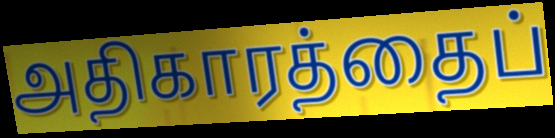
அதிகாரத்தைப்